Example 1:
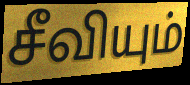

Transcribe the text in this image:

சீவியும்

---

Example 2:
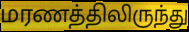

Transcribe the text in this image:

மரணத்திலிருந்து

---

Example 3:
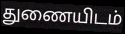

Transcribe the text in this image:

துணையிடம்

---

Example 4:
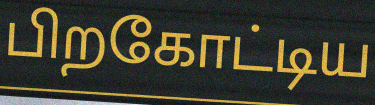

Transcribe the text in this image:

பிறகோட்டிய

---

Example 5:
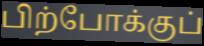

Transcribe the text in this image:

பிற்போக்குப்